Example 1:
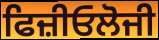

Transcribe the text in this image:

ਫਿਜ਼ੀਓਲੋਜੀ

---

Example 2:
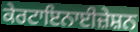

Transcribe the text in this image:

ਕੇਰਟਾਇਨਾਈਜ਼ੇਸ਼ਨ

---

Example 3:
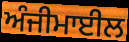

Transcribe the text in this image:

ਅੰਜੀਮਾਈਲ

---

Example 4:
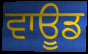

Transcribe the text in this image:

ਵਾਊਡ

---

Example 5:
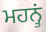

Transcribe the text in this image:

ਮਹਨ੍ਤਂ